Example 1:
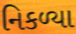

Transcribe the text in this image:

નિકળ્યા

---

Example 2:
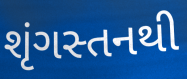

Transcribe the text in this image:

શૃંગસ્તનથી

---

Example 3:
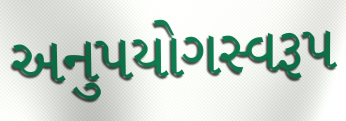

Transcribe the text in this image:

અનુપયોગસ્વરૂપ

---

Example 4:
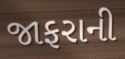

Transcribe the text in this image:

જાફરાની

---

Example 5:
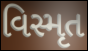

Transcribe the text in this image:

વિસ્મૃત